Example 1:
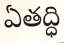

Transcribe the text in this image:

ఏతద్ధి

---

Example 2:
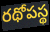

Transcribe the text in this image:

రథోపస్థ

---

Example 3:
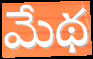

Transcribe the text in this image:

మేథ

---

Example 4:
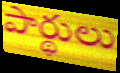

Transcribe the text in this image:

పార్థులు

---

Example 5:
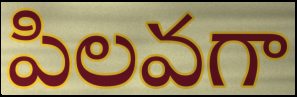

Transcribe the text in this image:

పిలవగా